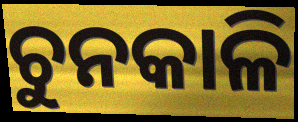
ଚୁନକାଳି